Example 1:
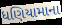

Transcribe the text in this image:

ધણિયામાના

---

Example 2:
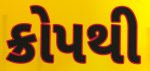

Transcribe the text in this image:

ક્રોપથી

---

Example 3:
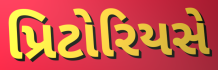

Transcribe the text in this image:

પ્રિટોરિયસે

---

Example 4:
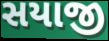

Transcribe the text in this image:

સયાજી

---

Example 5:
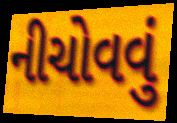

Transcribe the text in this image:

નીચોવવું